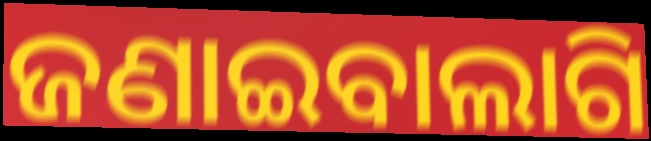
ଜଣାଇବାଲାଗି